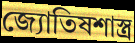
জ্যোতিষশাস্ত্র